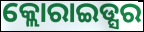
କ୍ଲୋରାଇଡ୍ସର